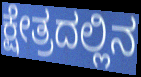
ಕ್ಷೇತ್ರದಲ್ಲಿನ